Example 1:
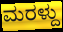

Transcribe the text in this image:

ಮರಳ್ದು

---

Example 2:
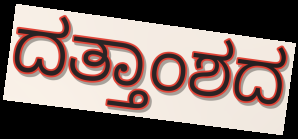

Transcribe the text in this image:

ದತ್ತಾಂಶದ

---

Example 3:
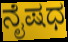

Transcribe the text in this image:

ನೈಷಧ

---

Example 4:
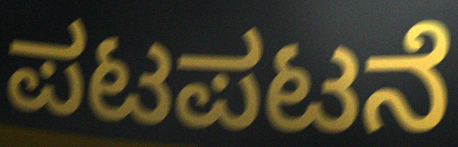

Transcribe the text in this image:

ಪಟಪಟನೆ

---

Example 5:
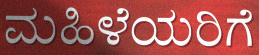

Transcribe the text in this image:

ಮಹಿಳೆಯರಿಗೆ